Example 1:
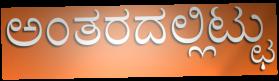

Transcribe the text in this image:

ಅಂತರದಲ್ಲಿಟ್ಟು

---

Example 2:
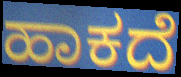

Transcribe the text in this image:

ಹಾಕದೆ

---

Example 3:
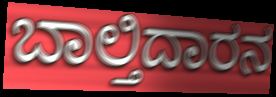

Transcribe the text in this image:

ಬಾಲ್ತಿದಾರನ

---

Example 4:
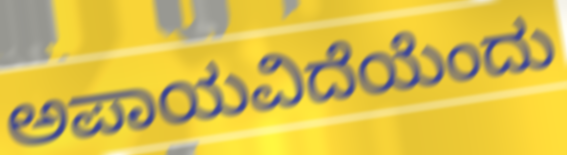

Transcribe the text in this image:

ಅಪಾಯವಿದೆಯೆಂದು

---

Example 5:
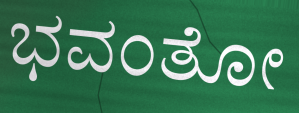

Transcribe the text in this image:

ಭವಂತೋ